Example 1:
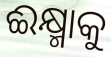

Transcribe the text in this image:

ଈକ୍ଷ୍ମାକୁ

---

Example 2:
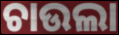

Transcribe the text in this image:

ଚାଉଲା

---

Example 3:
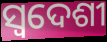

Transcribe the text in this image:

ସ୍ଵଦେଶୀ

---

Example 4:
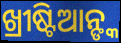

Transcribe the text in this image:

ଖ୍ରୀଷ୍ଟିଆନ୍ଙ୍କ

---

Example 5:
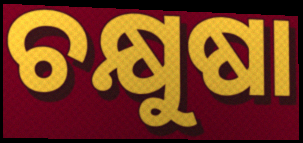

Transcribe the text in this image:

ଚକ୍ଷୁଷା